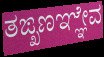
ತಙ್ಖಣಞ್ಞೇವ